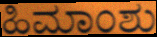
ಹಿಮಾಂಶು